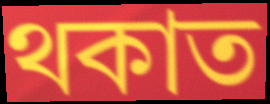
থকাত